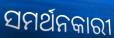
ସମର୍ଥନକାରୀ